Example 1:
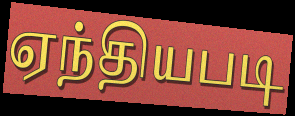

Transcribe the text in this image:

ஏந்தியபடி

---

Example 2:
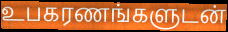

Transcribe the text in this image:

உபகரணங்களுடன்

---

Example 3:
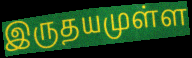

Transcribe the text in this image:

இருதயமுள்ள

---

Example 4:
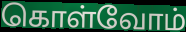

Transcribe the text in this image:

கொள்வோம்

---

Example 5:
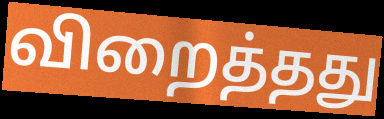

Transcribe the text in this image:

விறைத்தது